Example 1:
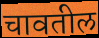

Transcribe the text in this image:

चावतील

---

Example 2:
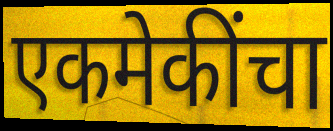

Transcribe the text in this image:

एकमेकींचा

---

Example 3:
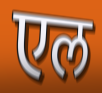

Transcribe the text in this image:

एल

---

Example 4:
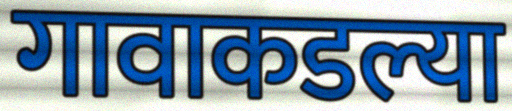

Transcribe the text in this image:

गावाकडल्या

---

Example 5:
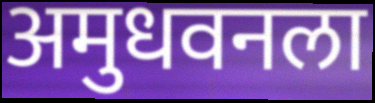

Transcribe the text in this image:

अमुधवनला